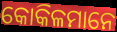
କୋକିଳମାନେ